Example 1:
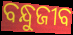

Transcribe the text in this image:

ବନ୍ଧୁଜୀବ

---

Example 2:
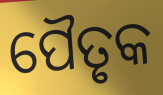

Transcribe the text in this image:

ପୈତୃକ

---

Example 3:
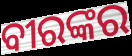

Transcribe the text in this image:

ବୀରଙ୍କର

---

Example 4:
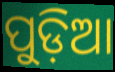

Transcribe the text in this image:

ପୁଡ଼ିଆ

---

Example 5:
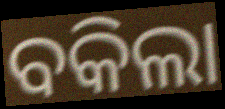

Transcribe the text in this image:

ବକିଲା